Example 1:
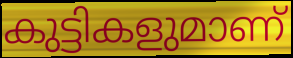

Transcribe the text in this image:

കുട്ടികളുമാണ്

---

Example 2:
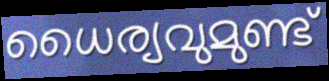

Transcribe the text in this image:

ധൈര്യവുമുണ്ട്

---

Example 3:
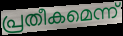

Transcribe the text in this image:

പ്രതീകമെന്ന്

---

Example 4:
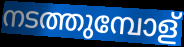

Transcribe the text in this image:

നടത്തുമ്പോള്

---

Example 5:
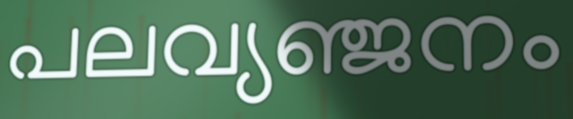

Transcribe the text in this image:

പലവ്യഞ്ജനം